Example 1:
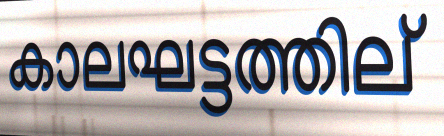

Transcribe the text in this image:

കാലഘട്ടത്തില്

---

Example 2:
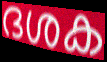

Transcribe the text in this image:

ദശക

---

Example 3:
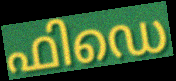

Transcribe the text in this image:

ഫിഡെ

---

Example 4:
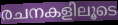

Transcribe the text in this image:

രചനകളിലൂടെ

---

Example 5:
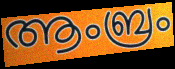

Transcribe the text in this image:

ആംബ്രം